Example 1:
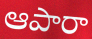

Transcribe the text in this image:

ఆపారా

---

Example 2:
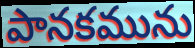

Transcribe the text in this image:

పానకమును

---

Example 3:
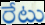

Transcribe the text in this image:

రేటు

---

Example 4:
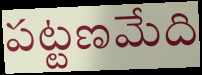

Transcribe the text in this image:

పట్టణమేది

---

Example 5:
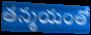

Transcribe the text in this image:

తన్మయంతో